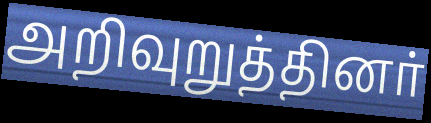
அறிவுறுத்தினர்